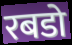
रबडो